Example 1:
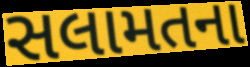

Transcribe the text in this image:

સલામતના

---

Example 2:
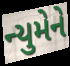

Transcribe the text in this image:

ન્યુમેને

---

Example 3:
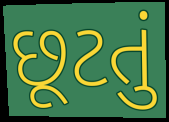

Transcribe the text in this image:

છૂટતું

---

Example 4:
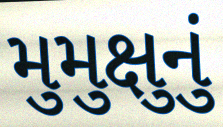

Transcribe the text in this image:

મુમુક્ષુનું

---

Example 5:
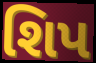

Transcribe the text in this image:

શિપ